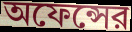
অফেন্সের